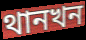
থানখন